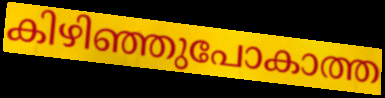
കിഴിഞ്ഞുപോകാത്ത